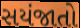
સયંજાતો